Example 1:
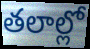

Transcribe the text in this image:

తలాల్లో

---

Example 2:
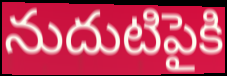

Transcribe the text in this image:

నుదుటిపైకి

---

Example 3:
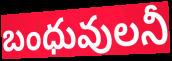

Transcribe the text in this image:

బంధువులనీ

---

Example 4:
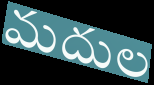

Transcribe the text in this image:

మదుల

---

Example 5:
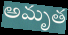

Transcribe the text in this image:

అమృత